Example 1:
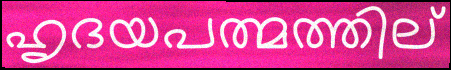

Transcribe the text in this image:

ഹൃദയപത്മത്തില്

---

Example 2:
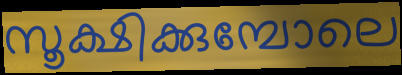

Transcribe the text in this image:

സൂക്ഷിക്കുമ്പോലെ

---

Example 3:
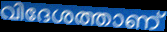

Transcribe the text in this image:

വിദേശത്താണ്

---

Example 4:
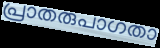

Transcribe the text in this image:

പ്രാതരുപാഗതാ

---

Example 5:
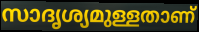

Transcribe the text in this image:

സാദൃശ്യമുള്ളതാണ്